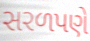
સરળપણે